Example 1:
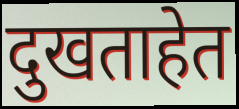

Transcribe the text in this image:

दुखताहेत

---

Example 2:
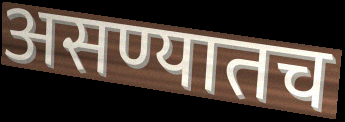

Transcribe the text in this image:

असण्यातच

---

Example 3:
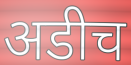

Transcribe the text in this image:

अडीच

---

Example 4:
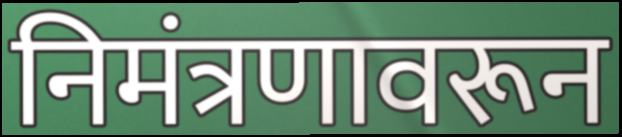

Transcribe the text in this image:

निमंत्रणावरून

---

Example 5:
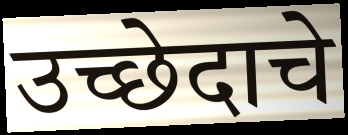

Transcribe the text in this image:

उच्छेदाचे